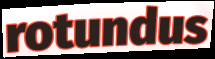
rotundus